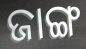
ଜାଙ୍ଗ